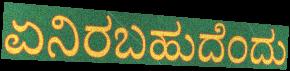
ಏನಿರಬಹುದೆಂದು